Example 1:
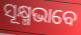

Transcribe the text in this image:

ସୂକ୍ଷ୍ମଭାବେ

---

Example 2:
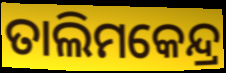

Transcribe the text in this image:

ତାଲିମକେନ୍ଦ୍ର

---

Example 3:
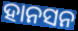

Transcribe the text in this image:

ହାନସନ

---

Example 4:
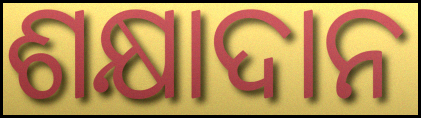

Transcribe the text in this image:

ଶକ୍ଷାଦାନ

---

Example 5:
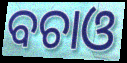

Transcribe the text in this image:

ବଚାଓ